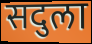
सदुला